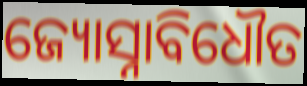
ଜ୍ୟୋସ୍ନାବିଧୌତ